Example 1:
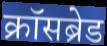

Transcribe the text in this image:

क्रॉसब्रेड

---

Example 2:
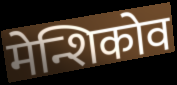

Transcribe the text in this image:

मेन्शिकोव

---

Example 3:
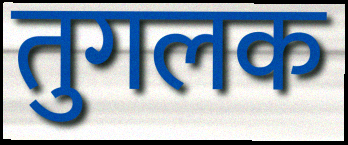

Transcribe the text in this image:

तुगलक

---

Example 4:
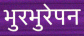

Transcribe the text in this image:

भुरभुरेपन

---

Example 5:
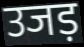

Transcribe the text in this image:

उजड़